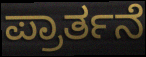
ಪ್ರಾರ್ತನೆ